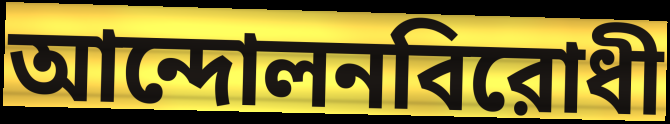
আন্দোলনবিরোধী